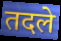
तदले